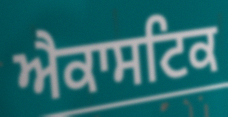
ਐਕਾਸਟਿਕ